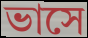
ভাসে